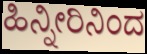
ಹಿನ್ನೀರಿನಿಂದ